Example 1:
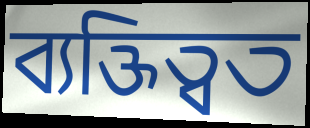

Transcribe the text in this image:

ব্যক্তিত্বত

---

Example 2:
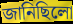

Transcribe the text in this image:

জানিছিলো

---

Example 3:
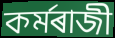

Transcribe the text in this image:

কৰ্মৰাজী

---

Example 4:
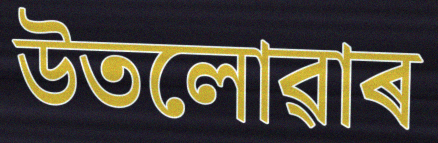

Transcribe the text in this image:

উতলোৱাৰ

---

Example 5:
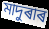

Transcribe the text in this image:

মাদুৰাৰ